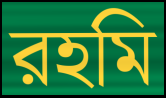
রহমি